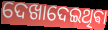
ଦେଖାଦେଇଥିଵା